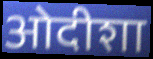
ओदीशा